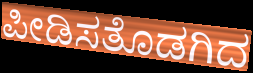
ಪೀಡಿಸತೊಡಗಿದ